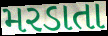
મરડાતા